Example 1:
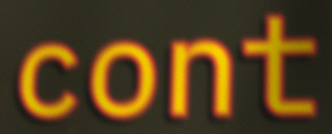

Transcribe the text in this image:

cont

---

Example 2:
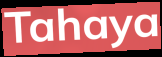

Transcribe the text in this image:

Tahaya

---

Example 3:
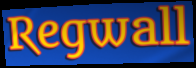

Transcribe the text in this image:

Regwall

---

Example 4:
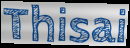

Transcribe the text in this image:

Thisai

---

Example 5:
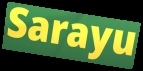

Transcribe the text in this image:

Sarayu